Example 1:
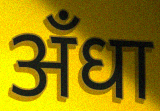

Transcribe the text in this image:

अँधा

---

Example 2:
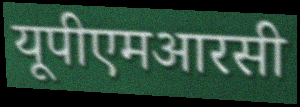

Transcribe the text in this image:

यूपीएमआरसी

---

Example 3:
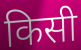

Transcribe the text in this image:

किसी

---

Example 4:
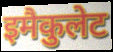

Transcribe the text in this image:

इमैकुलेट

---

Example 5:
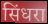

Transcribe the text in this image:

सिंधरा